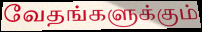
வேதங்களுக்கும்